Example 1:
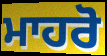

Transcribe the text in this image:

ਮਾਹਰੋ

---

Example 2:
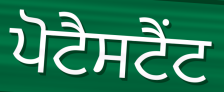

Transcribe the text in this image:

ਪੋਟੈਸਟੈਂਟ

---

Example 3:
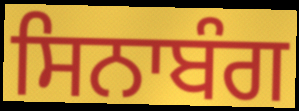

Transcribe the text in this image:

ਸਿਨਾਬੰਗ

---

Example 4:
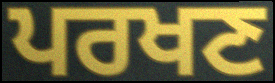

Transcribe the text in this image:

ਪਰਖਣ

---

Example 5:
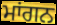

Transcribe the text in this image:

ਮਾਂਗਨ